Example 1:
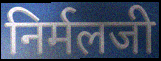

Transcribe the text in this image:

निर्मलजी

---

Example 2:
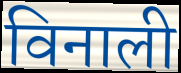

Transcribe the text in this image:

विनाली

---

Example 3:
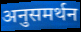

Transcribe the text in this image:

अनुसमर्थन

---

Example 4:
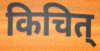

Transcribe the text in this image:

किचित्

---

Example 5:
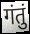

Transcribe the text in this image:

गंतुं